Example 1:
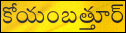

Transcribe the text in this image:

కోయంబత్తూర్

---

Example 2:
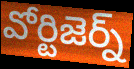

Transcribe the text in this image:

వోర్టిజెర్న్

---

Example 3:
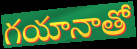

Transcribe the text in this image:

గయానాతో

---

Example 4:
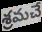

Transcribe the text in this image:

శ్రమచే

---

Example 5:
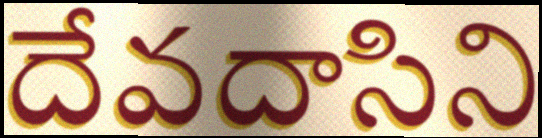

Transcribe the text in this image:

దేవదాసిని